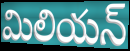
మిలియన్